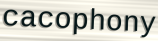
cacophony